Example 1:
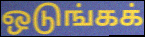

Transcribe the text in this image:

ஒடுங்கக்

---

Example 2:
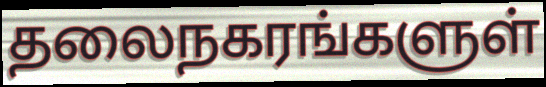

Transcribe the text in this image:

தலைநகரங்களுள்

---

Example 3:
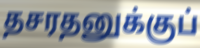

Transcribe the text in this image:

தசரதனுக்குப்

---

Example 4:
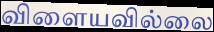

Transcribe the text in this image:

விளையவில்லை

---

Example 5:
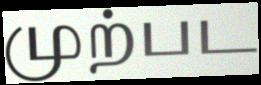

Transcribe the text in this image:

முற்பட